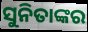
ସୁନିତାଙ୍କର